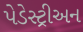
પેડેસ્ટ્રીઅન